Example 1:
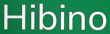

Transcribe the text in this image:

Hibino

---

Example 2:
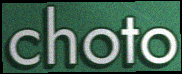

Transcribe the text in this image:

choto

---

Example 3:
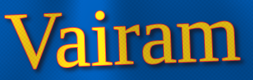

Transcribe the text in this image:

Vairam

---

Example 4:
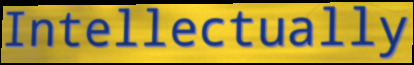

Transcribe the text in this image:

Intellectually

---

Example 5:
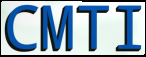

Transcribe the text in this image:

CMTI